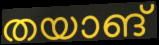
തയാങ്